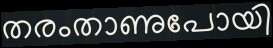
തരംതാണുപോയി